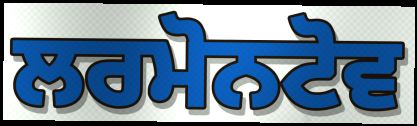
ਲਰਮੋਨਟੋਵ